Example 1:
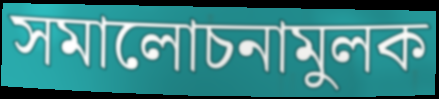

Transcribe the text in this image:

সমালোচনামুলক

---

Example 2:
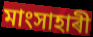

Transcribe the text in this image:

মাংসাহাৰী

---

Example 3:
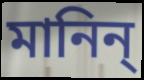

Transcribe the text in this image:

মানিন্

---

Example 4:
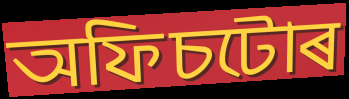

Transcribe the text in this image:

অফিচটোৰ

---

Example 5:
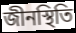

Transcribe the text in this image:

জীনস্থিতি